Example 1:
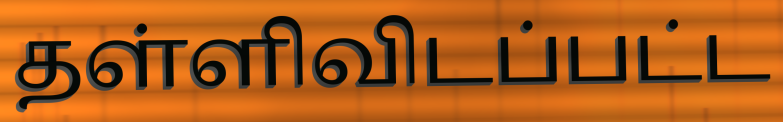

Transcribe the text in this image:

தள்ளிவிடப்பட்ட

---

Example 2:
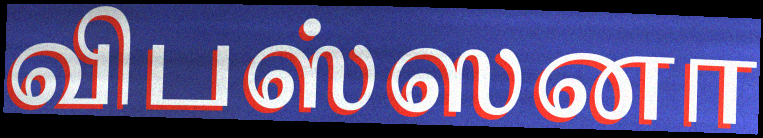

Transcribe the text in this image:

விபஸ்ஸனா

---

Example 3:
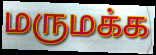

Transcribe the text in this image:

மருமக்க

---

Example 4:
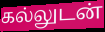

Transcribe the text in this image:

கல்லுடன்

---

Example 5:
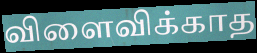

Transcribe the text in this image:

விளைவிக்காத